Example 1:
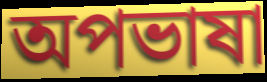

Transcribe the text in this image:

অপভাষা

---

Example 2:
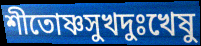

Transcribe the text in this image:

শীতোষ্ণসুখদুঃখেষু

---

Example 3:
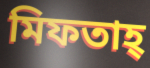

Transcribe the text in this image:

মিফতাহ্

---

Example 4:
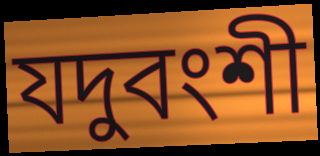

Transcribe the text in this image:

যদুবংশী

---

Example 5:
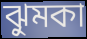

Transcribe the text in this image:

ঝুমকা